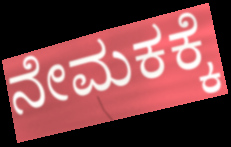
ನೇಮಕಕ್ಕೆ